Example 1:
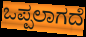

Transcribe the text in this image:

ಒಪ್ಪಲಾಗದೆ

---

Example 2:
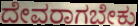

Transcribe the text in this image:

ದೇವರಾಗಬೇಕು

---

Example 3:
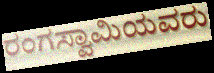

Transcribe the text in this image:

ರಂಗಸ್ವಾಮಿಯವರು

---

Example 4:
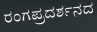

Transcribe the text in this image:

ರಂಗಪ್ರದರ್ಶನದ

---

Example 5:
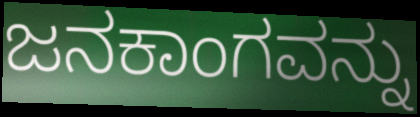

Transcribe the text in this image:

ಜನಕಾಂಗವನ್ನು